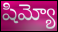
షిమ్యో